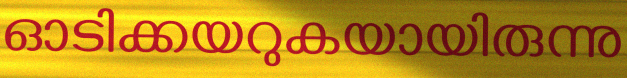
ഓടിക്കയറുകയായിരുന്നു